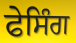
ਫੇਸਿੰਗ